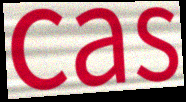
cas